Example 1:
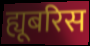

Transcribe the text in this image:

ह्यूबरिस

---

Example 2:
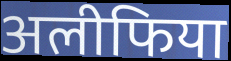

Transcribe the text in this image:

अलीफिया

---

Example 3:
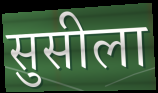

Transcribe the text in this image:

सुसीला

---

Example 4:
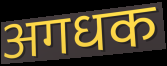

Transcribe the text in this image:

अगधक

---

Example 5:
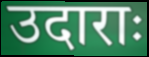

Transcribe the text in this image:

उदाराः